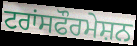
ਟਰਾਂਸਫੌਰਮੇਸ਼ਨ